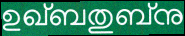
ഉഖ്ബതുബ്നു